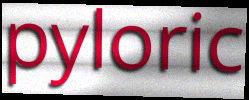
pyloric